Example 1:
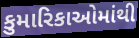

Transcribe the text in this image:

કુમારિકાઓમાંથી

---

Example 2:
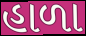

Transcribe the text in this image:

હાળા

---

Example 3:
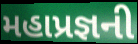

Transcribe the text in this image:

મહાપ્રજ્ઞની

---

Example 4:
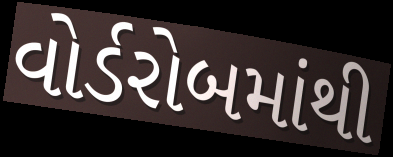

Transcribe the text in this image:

વોર્ડરોબમાંથી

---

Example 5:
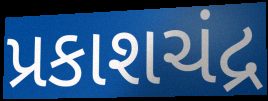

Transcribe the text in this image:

પ્રકાશચંદ્ર